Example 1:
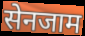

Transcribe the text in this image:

सेनजाम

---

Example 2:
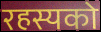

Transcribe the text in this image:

रहस्यको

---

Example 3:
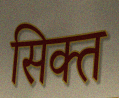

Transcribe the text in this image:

सिक्त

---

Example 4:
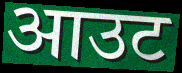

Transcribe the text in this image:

आउट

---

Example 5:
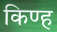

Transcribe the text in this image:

किण्ह